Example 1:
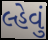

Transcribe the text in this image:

લ્હેવું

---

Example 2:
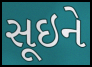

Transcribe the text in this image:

સૂઇને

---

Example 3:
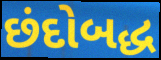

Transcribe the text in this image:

છંદોબદ્ધ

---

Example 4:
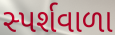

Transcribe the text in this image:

સ્પર્શવાળા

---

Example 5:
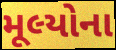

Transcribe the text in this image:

મૂલ્યોના